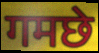
गमछे